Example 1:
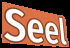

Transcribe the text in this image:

Seel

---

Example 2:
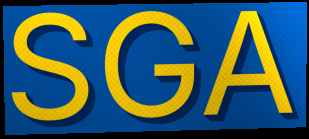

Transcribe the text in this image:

SGA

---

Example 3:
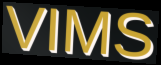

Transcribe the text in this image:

VIMS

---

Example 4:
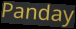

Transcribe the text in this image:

Panday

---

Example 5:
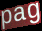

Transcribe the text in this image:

pag